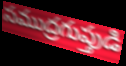
సముద్రగుప్తుడి